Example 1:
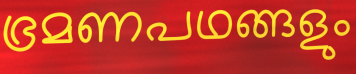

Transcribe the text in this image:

ഭ്രമണപഥങ്ങളും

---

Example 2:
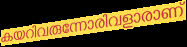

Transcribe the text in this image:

കയറിവരുന്നോരിവളാരാണ്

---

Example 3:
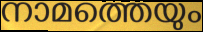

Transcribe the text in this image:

നാമത്തെയും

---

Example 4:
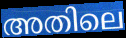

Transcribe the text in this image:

അതിലെ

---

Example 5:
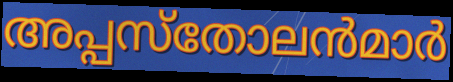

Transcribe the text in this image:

അപ്പസ്തോലൻമാർ